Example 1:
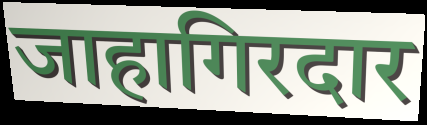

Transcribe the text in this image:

जाहागिरदार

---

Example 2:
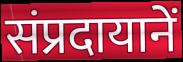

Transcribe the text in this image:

संप्रदायानें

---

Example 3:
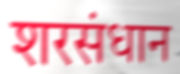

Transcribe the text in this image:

शरसंधान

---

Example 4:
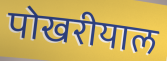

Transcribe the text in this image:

पोखरीयाल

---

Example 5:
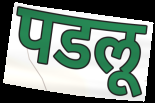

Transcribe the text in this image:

पडलू